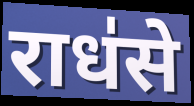
राध॑से